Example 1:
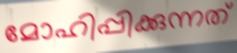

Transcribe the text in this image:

മോഹിപ്പിക്കുന്നത്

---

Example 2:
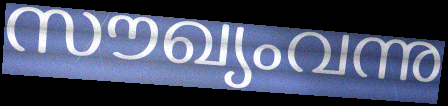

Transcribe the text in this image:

സൗഖ്യംവന്നു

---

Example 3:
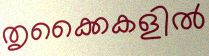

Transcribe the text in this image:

തൃക്കൈകളിൽ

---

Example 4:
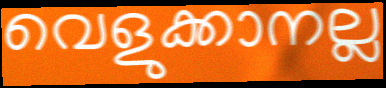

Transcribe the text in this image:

വെളുക്കാനല്ല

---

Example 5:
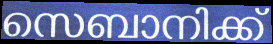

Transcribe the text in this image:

സെബാനിക്ക്